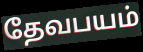
தேவபயம்